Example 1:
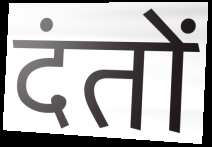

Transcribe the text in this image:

दंतों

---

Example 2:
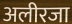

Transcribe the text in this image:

अलीरजा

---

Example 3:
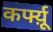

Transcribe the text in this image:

कर्फ्य़ू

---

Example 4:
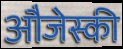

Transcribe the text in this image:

औजेस्की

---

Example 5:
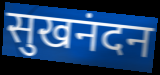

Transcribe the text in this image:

सुखनंदन